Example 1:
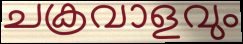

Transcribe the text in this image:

ചക്രവാളവും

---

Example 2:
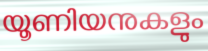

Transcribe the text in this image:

യൂണിയനുകളും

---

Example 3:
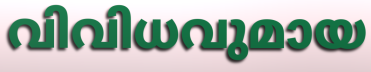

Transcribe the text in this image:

വിവിധവുമായ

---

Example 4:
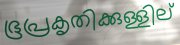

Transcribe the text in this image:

ഭൂപ്രകൃതിക്കുള്ളില്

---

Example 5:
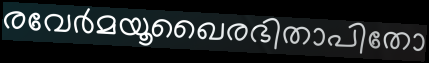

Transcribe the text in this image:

രവേർമയൂഖൈരഭിതാപിതോ